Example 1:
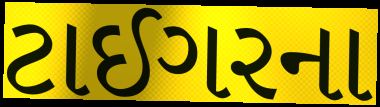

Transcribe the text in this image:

ટાઈગરના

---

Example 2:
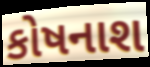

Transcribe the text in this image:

કોષનાશ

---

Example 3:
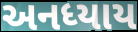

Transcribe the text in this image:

અનધ્યાય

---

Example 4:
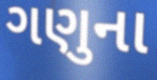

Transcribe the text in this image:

ગણુના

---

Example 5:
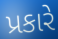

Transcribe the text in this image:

પ્રકારે